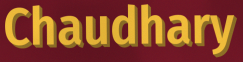
Chaudhary